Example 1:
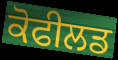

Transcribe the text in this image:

ਕੋਫੀਲਡ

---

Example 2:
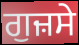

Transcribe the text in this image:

ਗੁਜ਼ਸੇ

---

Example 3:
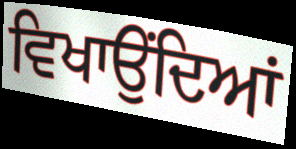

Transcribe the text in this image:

ਵਿਖਾਉਂਦਿਆਂ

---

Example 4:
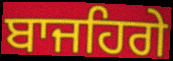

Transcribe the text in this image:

ਬਾਜਹਿਗੇ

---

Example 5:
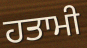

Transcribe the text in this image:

ਹਤਾਮੀ